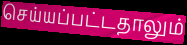
செய்யப்பட்டதாலும்